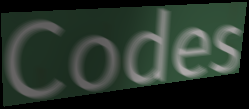
Codes